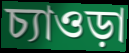
চ্যাওড়া